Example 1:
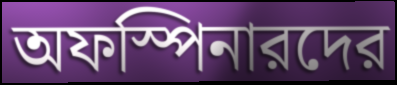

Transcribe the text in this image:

অফস্পিনারদের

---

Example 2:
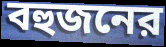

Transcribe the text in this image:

বহুজনের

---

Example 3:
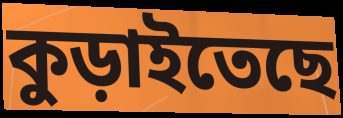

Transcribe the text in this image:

কুড়াইতেছে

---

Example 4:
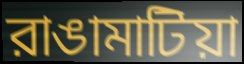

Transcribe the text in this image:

রাঙামাটিয়া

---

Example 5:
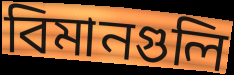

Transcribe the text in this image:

বিমানগুলি